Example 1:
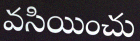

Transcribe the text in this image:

వసియించు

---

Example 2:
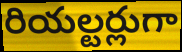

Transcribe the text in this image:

రియల్టర్లుగా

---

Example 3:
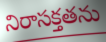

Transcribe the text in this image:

నిరాసక్తతను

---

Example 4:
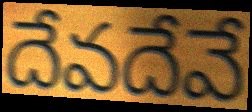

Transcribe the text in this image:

దేవదేవే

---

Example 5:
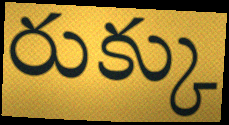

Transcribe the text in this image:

రుక్కు